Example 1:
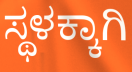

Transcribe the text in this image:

ಸ್ಥಳಕ್ಕಾಗಿ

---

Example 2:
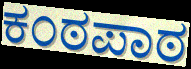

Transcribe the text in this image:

ಕಂಠಪಾಠ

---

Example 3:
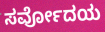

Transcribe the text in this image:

ಸರ್ವೋದಯ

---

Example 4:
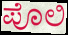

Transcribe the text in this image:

ಪೊಲಿ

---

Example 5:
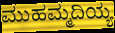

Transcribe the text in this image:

ಮುಹಮ್ಮದಿಯ್ಯ